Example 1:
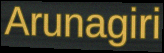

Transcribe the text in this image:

Arunagiri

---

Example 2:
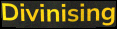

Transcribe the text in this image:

Divinising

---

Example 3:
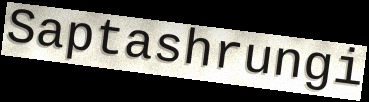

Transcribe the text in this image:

Saptashrungi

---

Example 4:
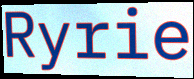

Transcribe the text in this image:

Ryrie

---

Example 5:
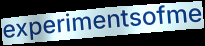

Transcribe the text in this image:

experimentsofme